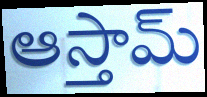
ఆస్తామ్